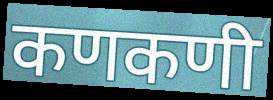
कणकणी